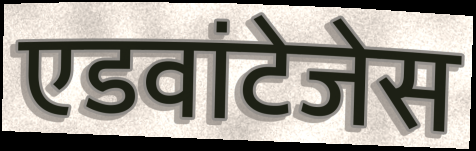
एडवांटेजेस